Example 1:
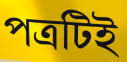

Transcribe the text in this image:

পত্রটিই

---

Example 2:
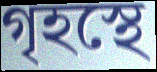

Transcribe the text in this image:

গৃহস্থে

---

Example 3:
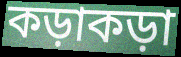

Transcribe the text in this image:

কড়াকড়া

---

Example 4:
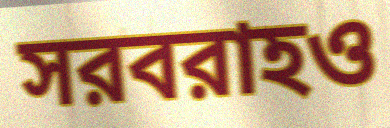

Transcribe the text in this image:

সরবরাহও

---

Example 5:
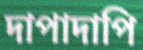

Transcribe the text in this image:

দাপাদাপি